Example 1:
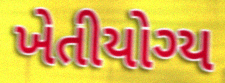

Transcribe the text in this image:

ખેતીયોગ્ય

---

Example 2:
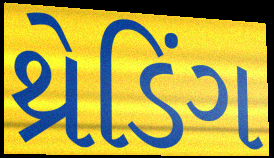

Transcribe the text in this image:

થ્રેડિંગ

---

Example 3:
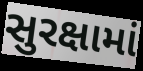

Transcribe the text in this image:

સુરક્ષામાં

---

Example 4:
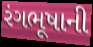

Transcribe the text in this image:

રંગભૂષાની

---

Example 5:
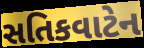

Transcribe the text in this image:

સતિકવાટેન